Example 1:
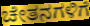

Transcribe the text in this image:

ಚೇತನಗಳಿಗೆ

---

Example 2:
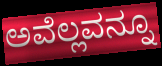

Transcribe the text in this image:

ಅವೆಲ್ಲವನ್ನೂ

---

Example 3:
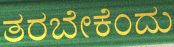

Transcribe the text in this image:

ತರಬೇಕೆಂದು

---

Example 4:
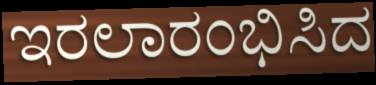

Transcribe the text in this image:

ಇರಲಾರಂಭಿಸಿದ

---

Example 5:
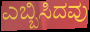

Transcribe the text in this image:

ಎಬ್ಬಿಸಿದವು